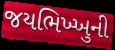
જયભિખ્ખુની